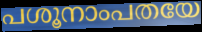
പശൂനാംപതയേ